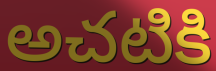
అచటికి